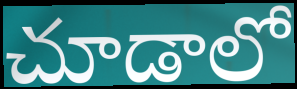
చూడాలో